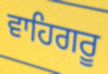
ਵਾਹਿਗਰੂ